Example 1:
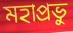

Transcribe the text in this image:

মহাপ্রভু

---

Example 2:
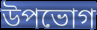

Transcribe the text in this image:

উপভোগ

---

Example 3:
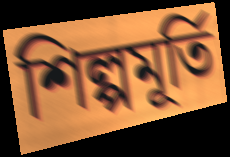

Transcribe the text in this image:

শিল্পমূর্তি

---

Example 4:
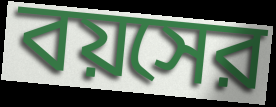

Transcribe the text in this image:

বয়সের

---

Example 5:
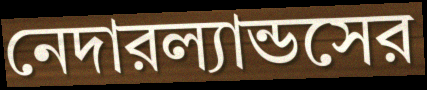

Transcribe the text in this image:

নেদারল্যান্ডসের